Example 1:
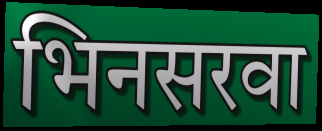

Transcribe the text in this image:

भिनसरवा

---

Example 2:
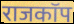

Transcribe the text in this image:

राजकॉप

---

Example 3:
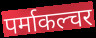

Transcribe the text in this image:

पर्माकल्चर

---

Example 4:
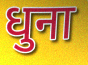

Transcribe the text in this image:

धुना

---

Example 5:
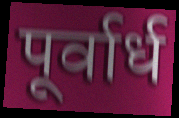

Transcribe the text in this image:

पूर्वार्ध